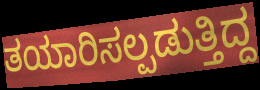
ತಯಾರಿಸಲ್ಪಡುತ್ತಿದ್ದ